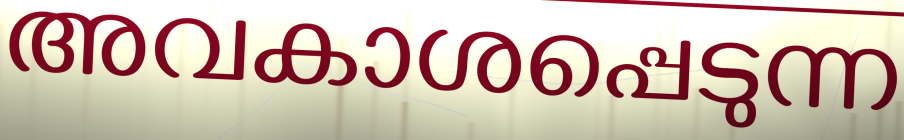
അവകാശപ്പെടുന്ന